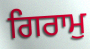
ਗਿਰਾਮੁ